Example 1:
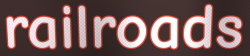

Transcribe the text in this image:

railroads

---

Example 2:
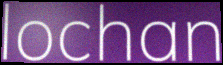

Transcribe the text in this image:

lochan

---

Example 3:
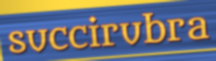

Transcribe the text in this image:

succirubra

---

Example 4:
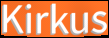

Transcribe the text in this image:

Kirkus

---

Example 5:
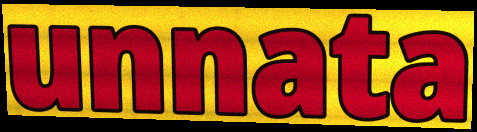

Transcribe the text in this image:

unnata